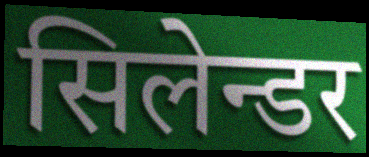
सिलेन्डर